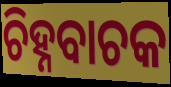
ଚିହ୍ନବାଚକ